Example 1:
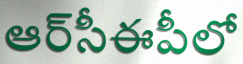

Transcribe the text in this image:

ఆర్‌సీఈపీలో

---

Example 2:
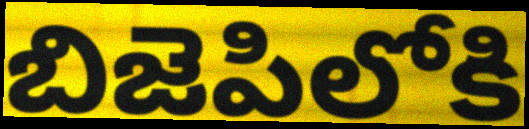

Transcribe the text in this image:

బిజెపిలోకి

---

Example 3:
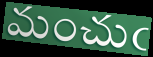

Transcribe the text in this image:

మంచుఁ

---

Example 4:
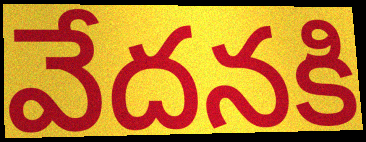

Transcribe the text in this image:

వేదనకి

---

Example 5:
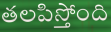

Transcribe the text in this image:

తలపిస్తోంది